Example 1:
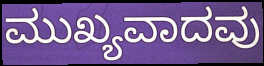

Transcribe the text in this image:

ಮುಖ್ಯವಾದವು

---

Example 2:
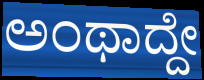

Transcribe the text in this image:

ಅಂಥಾದ್ದೇ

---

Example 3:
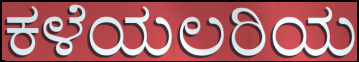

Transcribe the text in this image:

ಕಳೆಯಲರಿಯ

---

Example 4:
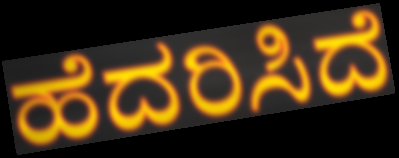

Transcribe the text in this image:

ಹೆದರಿಸಿದೆ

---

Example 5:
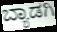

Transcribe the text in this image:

ಬ್ಯಾಡಗಿ